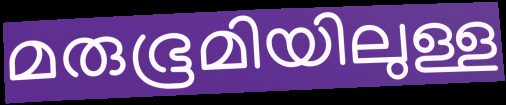
മരുഭൂമിയിലുള്ള